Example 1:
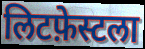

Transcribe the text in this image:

लिटफ़ेस्टला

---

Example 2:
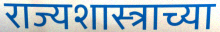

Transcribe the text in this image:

राज्यशास्त्राच्या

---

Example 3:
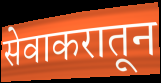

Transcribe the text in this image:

सेवाकरातून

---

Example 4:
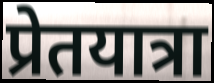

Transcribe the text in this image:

प्रेतयात्रा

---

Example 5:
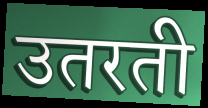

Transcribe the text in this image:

उतरती